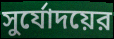
সুর্যোদয়ের